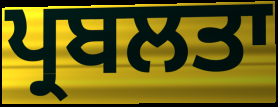
ਪ੍ਰਬਲਤਾ